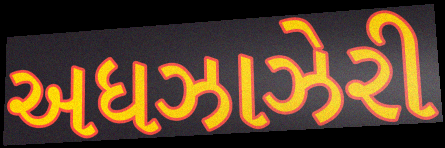
અધઝાઝેરી